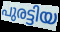
പുരട്ടിയ